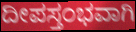
ದೀಪಸ್ತಂಭವಾಗಿ